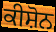
ਕੀਸ਼ੋਨ